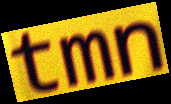
tmn